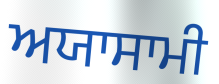
ਅਯਾਸਾਮੀ